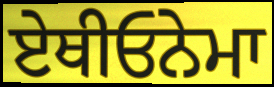
ਏਥੀਓਨੇਮਾ